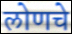
लोणचे